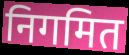
निगमित